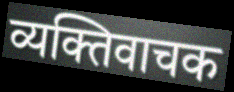
व्यक्तिवाचक